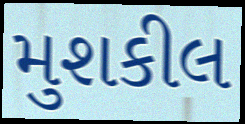
મુશકીલ